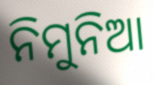
ନିମୁନିଆ